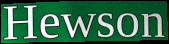
Hewson